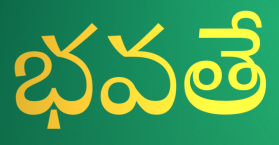
భవతే